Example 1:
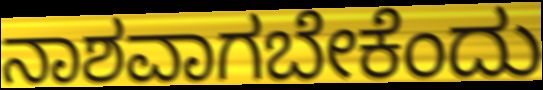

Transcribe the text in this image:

ನಾಶವಾಗಬೇಕೆಂದು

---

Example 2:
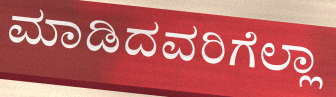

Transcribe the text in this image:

ಮಾಡಿದವರಿಗೆಲ್ಲಾ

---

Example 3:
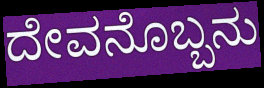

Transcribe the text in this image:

ದೇವನೊಬ್ಬನು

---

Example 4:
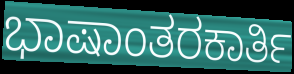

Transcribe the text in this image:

ಭಾಷಾಂತರಕಾರ್ತಿ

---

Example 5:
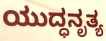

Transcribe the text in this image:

ಯುದ್ಧನೃತ್ಯ